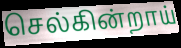
செல்கின்றாய்